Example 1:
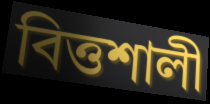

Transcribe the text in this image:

বিত্তশালী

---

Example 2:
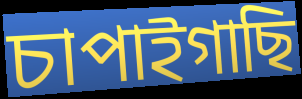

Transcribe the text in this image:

চাপাইগাছি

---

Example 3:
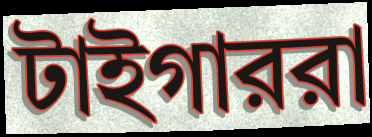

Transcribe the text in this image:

টাইগাররা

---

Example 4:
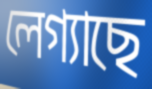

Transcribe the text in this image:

লেগ্যাছে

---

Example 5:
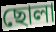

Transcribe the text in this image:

ছোলা